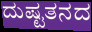
ದುಷ್ಟತನದ